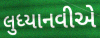
લુધ્યાનવીએ